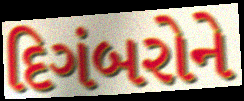
દિગંબરોને